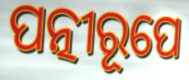
ପତ୍ନୀରୂପେ